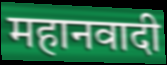
महानवादी